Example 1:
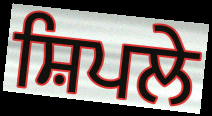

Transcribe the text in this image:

ਸ਼ਿਪਲੇ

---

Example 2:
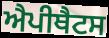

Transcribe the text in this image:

ਐਪੀਥੈਟਸ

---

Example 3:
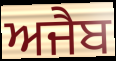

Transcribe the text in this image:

ਅਜੈਬ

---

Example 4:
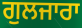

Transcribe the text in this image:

ਗੁਲਜਾਰਾ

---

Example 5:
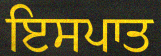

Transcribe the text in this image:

ਇਸਪਾਤ